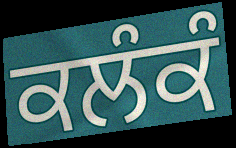
ਕਲੰਕੰ